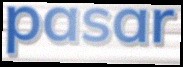
pasar